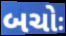
બચોઃ